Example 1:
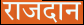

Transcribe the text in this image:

राजदान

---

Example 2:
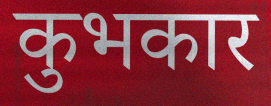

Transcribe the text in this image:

कुभकार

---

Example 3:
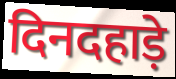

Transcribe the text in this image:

दिनदहाड़े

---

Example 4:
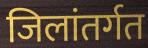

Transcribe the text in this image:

जिलांतर्गत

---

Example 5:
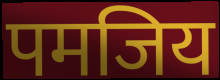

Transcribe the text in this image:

पमजिय